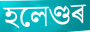
হলেণ্ডৰ